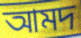
আমদ